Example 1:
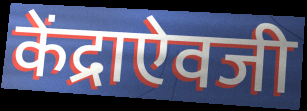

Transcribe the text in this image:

केंद्राऐवजी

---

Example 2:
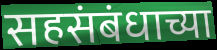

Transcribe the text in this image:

सहसंबंधाच्या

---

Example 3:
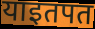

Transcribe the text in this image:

याइतपत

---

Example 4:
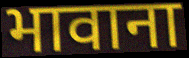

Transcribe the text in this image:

भावाना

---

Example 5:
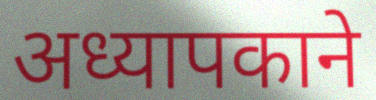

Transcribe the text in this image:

अध्यापकाने